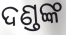
ଦଣ୍ଡଙ୍କ